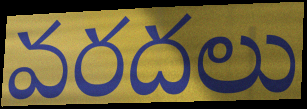
వరదలు